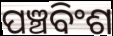
ପଞ୍ଚବିଂଶ